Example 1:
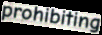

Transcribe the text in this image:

prohibiting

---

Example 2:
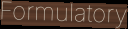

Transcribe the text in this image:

Formulatory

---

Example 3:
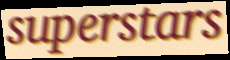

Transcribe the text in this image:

superstars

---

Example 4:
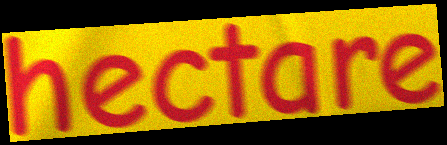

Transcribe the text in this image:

hectare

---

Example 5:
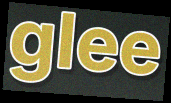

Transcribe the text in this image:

glee